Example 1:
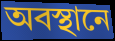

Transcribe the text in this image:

অবস্থানে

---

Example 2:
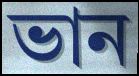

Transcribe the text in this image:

ভান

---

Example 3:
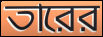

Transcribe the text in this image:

তারের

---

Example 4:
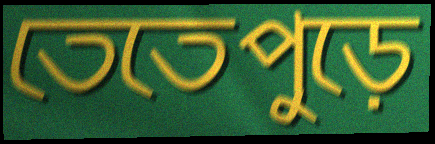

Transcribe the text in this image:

তেতেপুড়ে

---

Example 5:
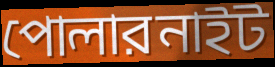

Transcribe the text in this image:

পোলারনাইট